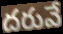
దరువే